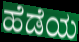
ಹೆಡೆಯ